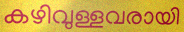
കഴിവുള്ളവരായി